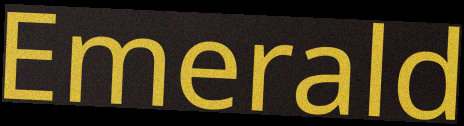
Emerald